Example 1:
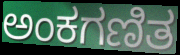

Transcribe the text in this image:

ಅಂಕಗಣಿತ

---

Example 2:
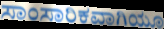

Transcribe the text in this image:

ಸಾಂಸಾರಿಕವಾಗಿಯೂ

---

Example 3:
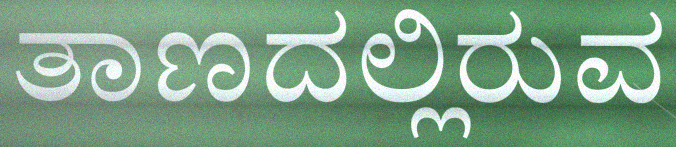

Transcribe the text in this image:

ತಾಣದಲ್ಲಿರುವ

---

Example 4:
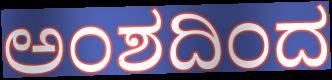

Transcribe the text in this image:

ಅಂಶದಿಂದ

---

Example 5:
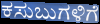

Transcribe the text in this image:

ಕಸುಬುಗಳಿಗೆ